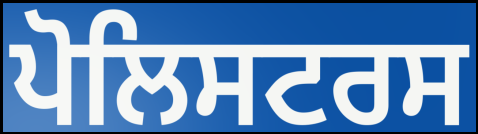
ਪੋਲਿਸਟਰਸ